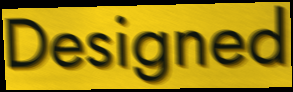
Designed